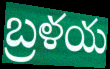
బ్రళయ